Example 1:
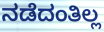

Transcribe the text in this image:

ನಡೆದಂತಿಲ್ಲ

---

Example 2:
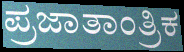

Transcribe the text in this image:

ಪ್ರಜಾತಾಂತ್ರಿಕ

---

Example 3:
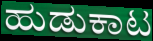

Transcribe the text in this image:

ಹುಡುಕಾಟ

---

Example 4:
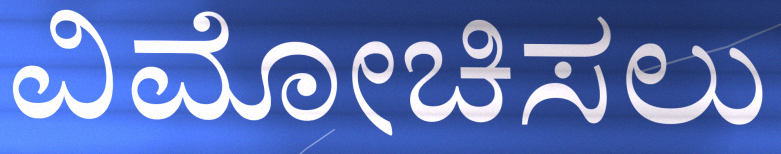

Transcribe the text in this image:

ವಿಮೋಚಿಸಲು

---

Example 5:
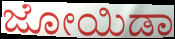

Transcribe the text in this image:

ಜೋಯಿಡಾ